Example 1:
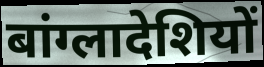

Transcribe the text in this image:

बांग्लादेशियों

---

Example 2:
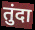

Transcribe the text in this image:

तुंदा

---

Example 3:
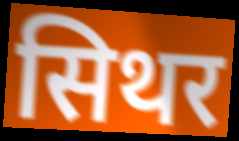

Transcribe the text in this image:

सिथर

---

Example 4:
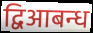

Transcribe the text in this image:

द्विआबन्ध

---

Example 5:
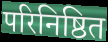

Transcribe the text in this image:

परिनिष्ठित